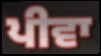
ਪੀਵਾ